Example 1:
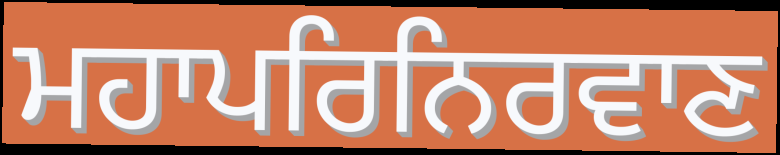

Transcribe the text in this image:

ਮਹਾਪਰਿਨਿਰਵਾਣ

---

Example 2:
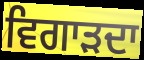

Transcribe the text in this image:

ਵਿਗਾੜਦਾ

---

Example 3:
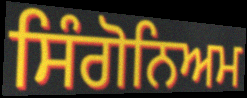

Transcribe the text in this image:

ਸਿੰਗੋਨਿਅਮ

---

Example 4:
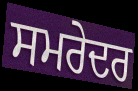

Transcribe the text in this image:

ਸਮਰੇਦਰ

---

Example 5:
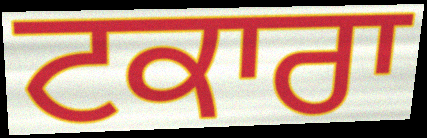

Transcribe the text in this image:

ਟਕਾਰਾ